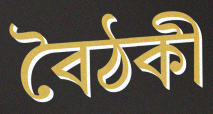
বৈঠকী